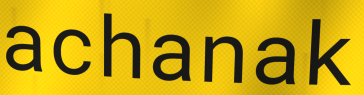
achanak